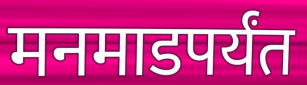
मनमाडपर्यंत